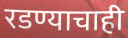
रडण्याचाही